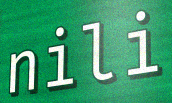
nili